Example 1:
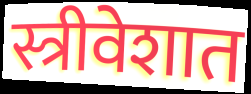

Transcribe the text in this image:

स्त्रीवेशात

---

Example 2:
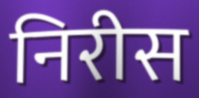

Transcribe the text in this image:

निरीस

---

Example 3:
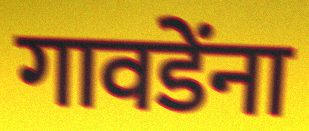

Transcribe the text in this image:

गावडेंना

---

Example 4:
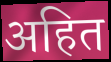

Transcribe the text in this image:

अहित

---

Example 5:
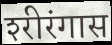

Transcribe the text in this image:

श्रीरंगास